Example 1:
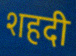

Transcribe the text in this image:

शहदी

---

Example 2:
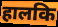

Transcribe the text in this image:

हालकि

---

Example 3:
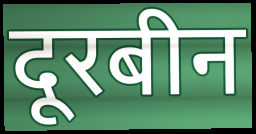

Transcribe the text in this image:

दूरबीन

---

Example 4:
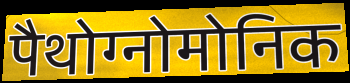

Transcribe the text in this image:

पैथोग्नोमोनिक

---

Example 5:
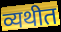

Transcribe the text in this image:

व्यथीत